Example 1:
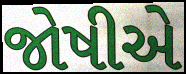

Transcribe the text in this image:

જોષીએ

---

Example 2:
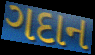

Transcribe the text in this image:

ગદાન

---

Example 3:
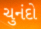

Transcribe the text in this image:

ચુનંદો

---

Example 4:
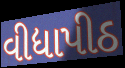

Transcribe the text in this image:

વીદ્યાપીઠ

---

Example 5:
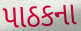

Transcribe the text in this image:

પાઠકના